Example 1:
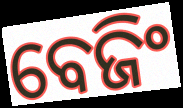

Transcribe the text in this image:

ବେଜିଂ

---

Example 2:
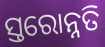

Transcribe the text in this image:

ସ୍ତରୋନ୍ନତି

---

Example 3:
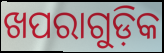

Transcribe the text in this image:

ଖପରାଗୁଡ଼ିକ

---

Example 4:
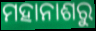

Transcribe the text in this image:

ମହାନାଶରୁ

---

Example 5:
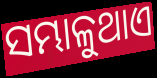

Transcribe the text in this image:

ସମ୍ଭାଳୁଥାଏ